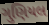
ગુણિયલ